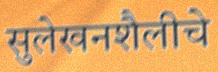
सुलेखनशैलीचे